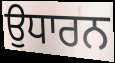
ਉਧਾਰਨ